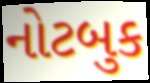
નોટબુક